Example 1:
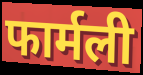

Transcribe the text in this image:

फार्मली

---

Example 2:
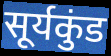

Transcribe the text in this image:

सूर्यकुंड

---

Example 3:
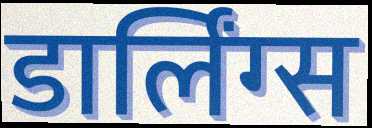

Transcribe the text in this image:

डार्लिंग्स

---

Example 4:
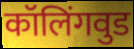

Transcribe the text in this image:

कॉलिंगवुड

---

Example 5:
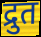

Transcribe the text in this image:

द्रुत